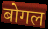
बोगल